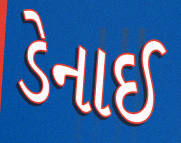
ડેનાઈ